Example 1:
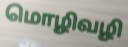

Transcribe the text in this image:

மொழிவழி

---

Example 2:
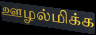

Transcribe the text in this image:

ஊழல்மிக்க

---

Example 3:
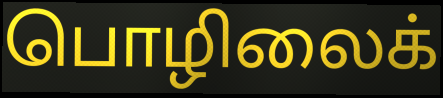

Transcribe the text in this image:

பொழிலைக்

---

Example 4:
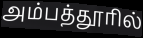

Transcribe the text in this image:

அம்பத்தூரில்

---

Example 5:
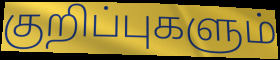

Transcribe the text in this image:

குறிப்புகளும்